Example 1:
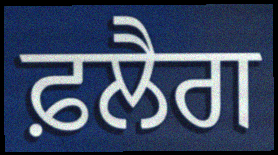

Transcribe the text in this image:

ਫ਼ਲੈਗ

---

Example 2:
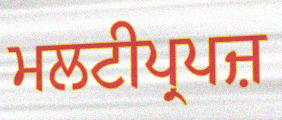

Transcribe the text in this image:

ਮਲਟੀਪ੍ਰਪਜ਼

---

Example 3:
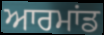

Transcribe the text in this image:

ਆਰਮਾਂਡ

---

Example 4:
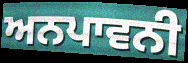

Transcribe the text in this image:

ਅਨਪਾਵਨੀ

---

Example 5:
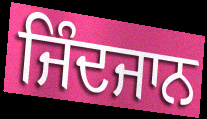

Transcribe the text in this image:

ਜਿੰਦਜਾਨ